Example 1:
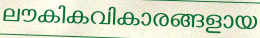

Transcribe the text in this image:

ലൗകികവികാരങ്ങളായ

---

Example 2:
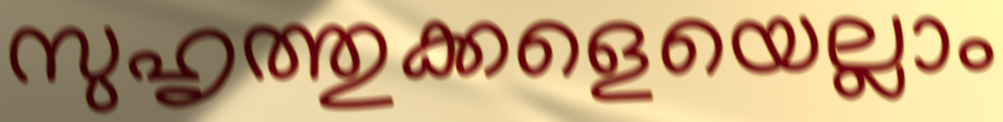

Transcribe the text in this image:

സുഹൃത്തുക്കളെയെല്ലാം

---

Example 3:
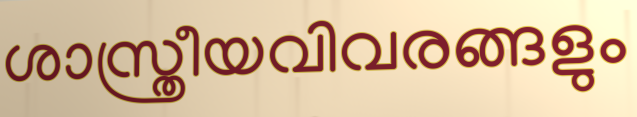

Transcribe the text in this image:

ശാസ്ത്രീയവിവരങ്ങളും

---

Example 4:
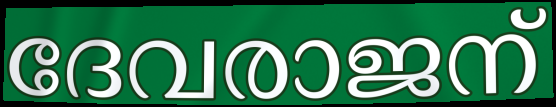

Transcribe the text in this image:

ദേവരാജന്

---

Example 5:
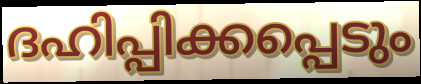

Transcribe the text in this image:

ദഹിപ്പിക്കപ്പെടും